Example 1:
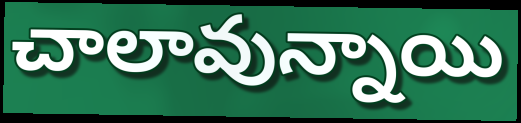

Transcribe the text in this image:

చాలావున్నాయి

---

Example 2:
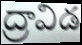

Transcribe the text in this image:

ద్రావిడ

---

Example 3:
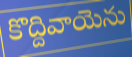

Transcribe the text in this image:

కొద్దివాయెను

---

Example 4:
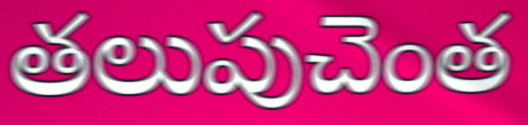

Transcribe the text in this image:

తలుపుచెంత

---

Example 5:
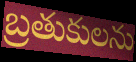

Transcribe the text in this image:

బ్రతుకులను